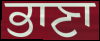
ਭਾਣਾ